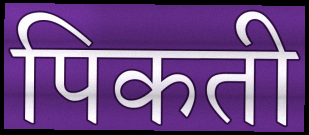
पिकती